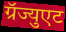
ग्रॅज्युएट